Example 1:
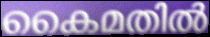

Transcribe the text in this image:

കൈമതിൽ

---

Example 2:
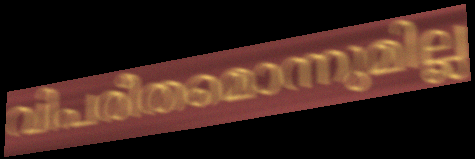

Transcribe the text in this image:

വിപരീതമൊന്നുമില്ല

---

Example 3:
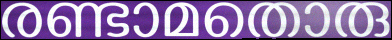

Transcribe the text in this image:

രണ്ടാമതൊരു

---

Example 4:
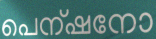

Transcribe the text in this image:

പെന്ഷനോ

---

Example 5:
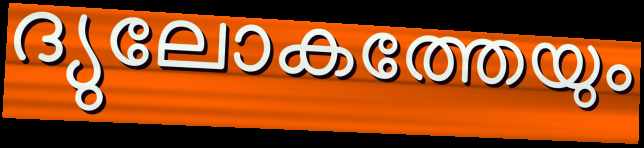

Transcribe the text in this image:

ദ്യുലോകത്തേയും